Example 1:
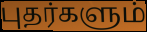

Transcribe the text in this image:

புதர்களும்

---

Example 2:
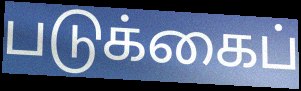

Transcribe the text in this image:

படுக்கைப்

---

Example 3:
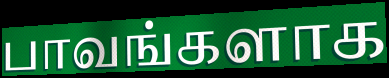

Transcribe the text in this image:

பாவங்களாக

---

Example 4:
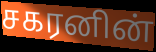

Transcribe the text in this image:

சகரனின்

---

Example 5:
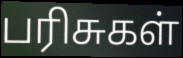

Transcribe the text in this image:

பரிசுகள்